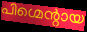
പിഗ്മെന്റായ